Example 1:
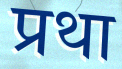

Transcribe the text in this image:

प्रथा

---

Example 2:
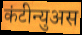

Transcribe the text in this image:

कंटीन्युअस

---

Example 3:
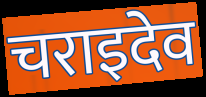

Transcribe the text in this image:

चराइदेव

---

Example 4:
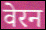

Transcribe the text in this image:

वेरन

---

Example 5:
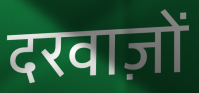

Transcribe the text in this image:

दरवाज़ों